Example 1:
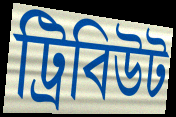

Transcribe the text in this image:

ট্রিবিউট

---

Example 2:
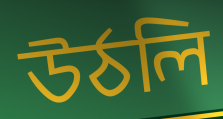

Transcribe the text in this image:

উঠলি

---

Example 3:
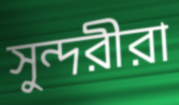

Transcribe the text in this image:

সুন্দরীরা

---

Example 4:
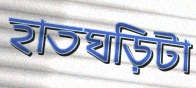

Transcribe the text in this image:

হাতঘড়িটা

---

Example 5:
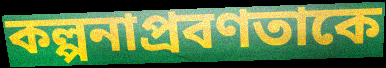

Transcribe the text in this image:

কল্পনাপ্রবণতাকে